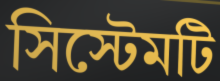
সিস্টেমটি